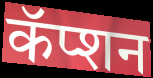
कॅप्शन